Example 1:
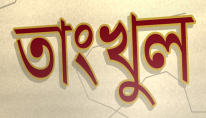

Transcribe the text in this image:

তাংখুল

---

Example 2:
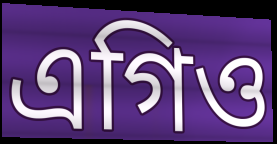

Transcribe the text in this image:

এগিও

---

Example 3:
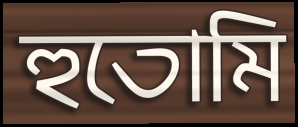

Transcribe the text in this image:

হুতোমি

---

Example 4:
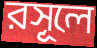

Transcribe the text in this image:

রসূলে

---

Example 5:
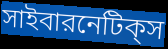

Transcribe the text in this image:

সাইবারনেটিক্‌স